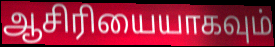
ஆசிரியையாகவும்